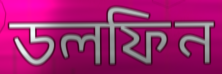
ডলফিন